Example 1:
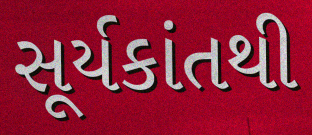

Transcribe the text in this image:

સૂર્યકાંતથી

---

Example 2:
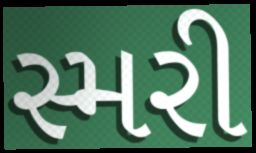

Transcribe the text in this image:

સ્મરી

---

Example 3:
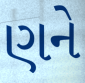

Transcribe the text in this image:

ણને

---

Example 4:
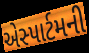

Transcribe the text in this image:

એસ્પાર્ટમની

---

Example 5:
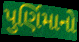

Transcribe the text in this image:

પુર્ણિમાનો